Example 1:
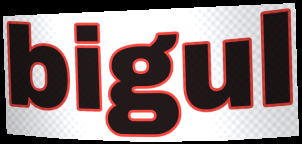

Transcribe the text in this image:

bigul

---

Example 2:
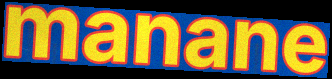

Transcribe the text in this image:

manane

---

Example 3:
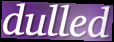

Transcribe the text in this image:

dulled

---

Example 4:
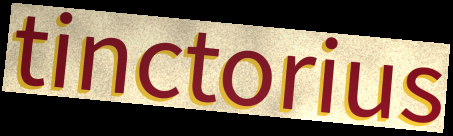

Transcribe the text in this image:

tinctorius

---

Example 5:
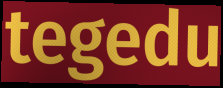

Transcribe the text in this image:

tegedu